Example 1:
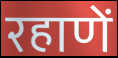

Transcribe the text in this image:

रहाणें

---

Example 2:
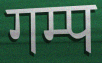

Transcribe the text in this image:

गम्प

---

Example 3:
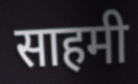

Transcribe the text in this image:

साहमी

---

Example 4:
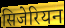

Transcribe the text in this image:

सिजेरियन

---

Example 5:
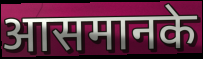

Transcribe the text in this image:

आसमानके